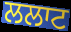
ਲਲਾਟ